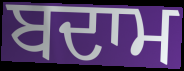
ਬਦਾਮ